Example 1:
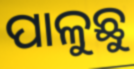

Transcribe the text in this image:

ପାଳୁଛୁ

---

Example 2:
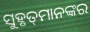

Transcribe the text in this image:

ସୁହୃତ୍‌ମାନଙ୍କର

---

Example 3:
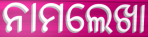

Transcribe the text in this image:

ନାମଲେଖା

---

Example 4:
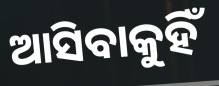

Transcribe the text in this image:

ଆସିବାକୁହିଁ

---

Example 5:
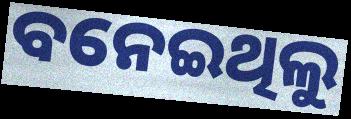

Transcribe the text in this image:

ବନେଇଥିଲୁ